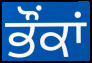
ਭੌਂਕਾਂ